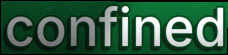
confined